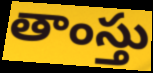
తాంస్తు